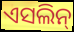
ଏସଲିନ୍